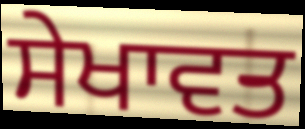
ਸੇਖਾਵਤ